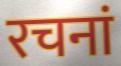
रचनां